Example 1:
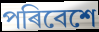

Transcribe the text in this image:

পৰিবেশে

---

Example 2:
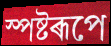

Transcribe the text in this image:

স্পষ্টৰূপে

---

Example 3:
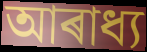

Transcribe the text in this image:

আৰাধ্য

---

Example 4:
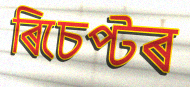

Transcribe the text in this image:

ৰিচেপ্টৰ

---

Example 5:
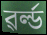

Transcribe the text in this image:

ৱৰ্ল্ড